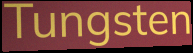
Tungsten